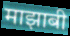
माझाबी